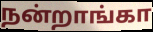
நன்றாங்கா